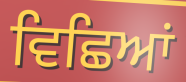
ਵਿਛਿਆਂ